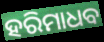
ହରିମାଧବ